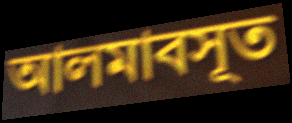
আলমাবসূত